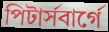
পিটার্সবার্গে